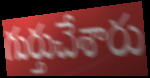
గుర్తుచేశారు